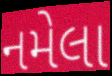
નમેલા